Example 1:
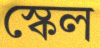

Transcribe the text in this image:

স্কেল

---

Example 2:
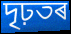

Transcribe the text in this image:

দৃঢ়তৰ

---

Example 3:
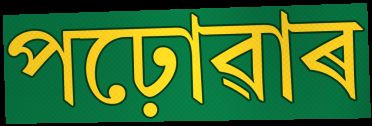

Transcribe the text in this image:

পঢ়োৱাৰ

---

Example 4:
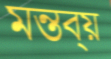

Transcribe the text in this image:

মন্তব্য়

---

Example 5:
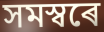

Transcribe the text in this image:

সমস্বৰে